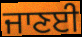
ਜਾਣਈ